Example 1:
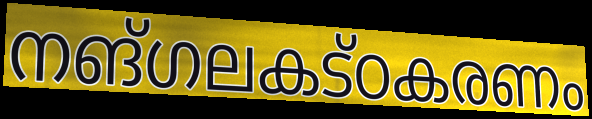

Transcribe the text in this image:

നങ്ഗലകട്ഠകരണം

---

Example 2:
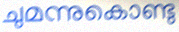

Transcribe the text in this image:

ചുമന്നുകൊണ്ടു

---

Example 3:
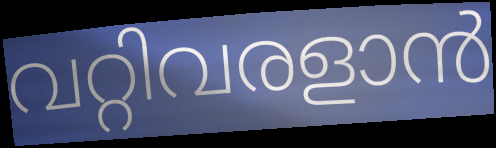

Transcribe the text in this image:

വറ്റിവരളാൻ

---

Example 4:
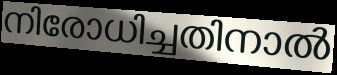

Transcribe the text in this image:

നിരോധിച്ചതിനാൽ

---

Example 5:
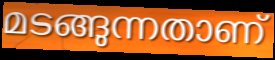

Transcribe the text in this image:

മടങ്ങുന്നതാണ്